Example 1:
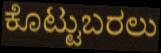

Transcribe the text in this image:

ಕೊಟ್ಟುಬರಲು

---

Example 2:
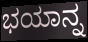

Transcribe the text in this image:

ಭಯಾನ್ನ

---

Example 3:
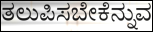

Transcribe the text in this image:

ತಲುಪಿಸಬೇಕೆನ್ನುವ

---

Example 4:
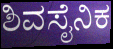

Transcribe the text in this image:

ಶಿವಸೈನಿಕ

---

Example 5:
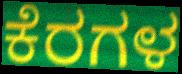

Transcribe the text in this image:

ಕೆರಗಳ